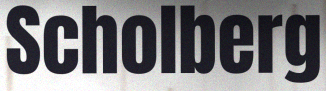
Scholberg